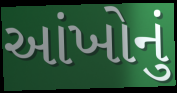
આંખોનું